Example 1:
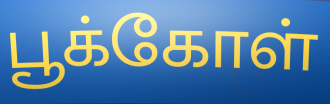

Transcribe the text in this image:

பூக்கோள்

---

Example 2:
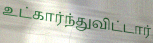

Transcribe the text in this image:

உட்கார்ந்துவிட்டார்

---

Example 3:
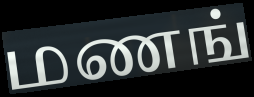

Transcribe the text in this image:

மணங்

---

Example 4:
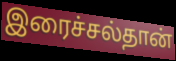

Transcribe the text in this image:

இரைச்சல்தான்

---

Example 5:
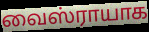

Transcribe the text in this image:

வைஸ்ராயாக